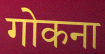
गोकना